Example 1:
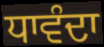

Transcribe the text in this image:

ਧਾਵੰਦਾ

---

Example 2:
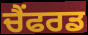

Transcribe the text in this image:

ਚੈਂਫਰਡ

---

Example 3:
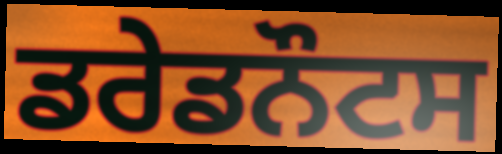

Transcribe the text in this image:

ਡਰੇਡਨੌਟਸ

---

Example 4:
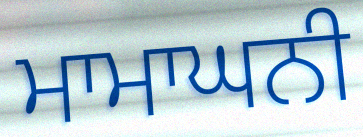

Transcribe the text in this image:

ਮਾਮਾਘਨੀ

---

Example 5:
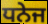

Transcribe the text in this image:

ਧਨੇਜ